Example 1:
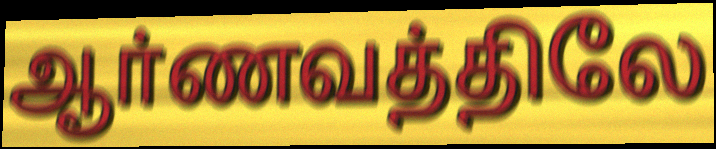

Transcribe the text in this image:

ஆர்ணவத்திலே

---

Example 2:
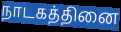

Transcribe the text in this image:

நாடகத்தினை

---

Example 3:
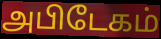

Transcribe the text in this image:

அபிடேகம்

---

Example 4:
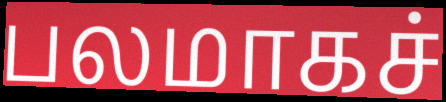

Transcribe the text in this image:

பலமாகச்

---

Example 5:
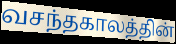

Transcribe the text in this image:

வசந்தகாலத்தின்